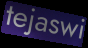
tejaswi